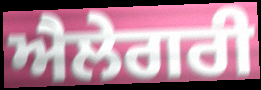
ਐਲੇਗਰੀ